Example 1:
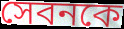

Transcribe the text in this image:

সেবনকে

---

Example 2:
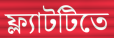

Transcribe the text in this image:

ফ্ল্যাটটিতে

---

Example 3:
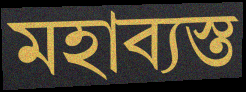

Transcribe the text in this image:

মহাব্যস্ত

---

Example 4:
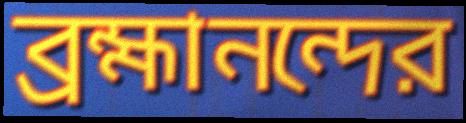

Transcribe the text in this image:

ব্রহ্মানন্দের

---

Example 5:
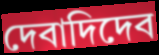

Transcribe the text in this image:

দেবাদিদেব